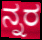
ನ್ನರ